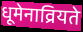
धूमेनाव्रियते